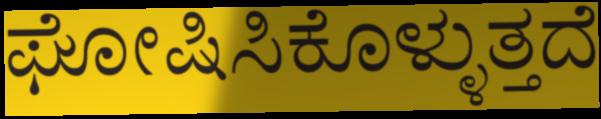
ಘೋಷಿಸಿಕೊಳ್ಳುತ್ತದೆ